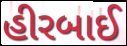
હીરબાઈ